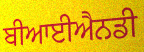
ਬੀਆਈਐਨਡੀ